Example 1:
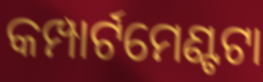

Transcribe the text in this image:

କମ୍ପାର୍ଟମେଣ୍ଟଟା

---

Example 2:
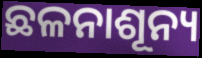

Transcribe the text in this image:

ଛଳନାଶୂନ୍ୟ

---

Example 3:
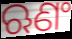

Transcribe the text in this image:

ଋଣଂ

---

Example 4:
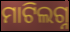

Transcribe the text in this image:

ମାଟିଲଗ୍ନ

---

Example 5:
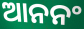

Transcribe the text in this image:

ଆନନଂ